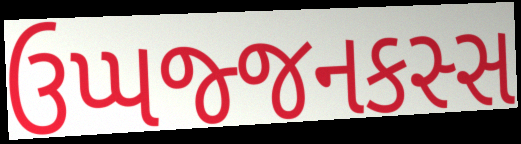
ઉપ્પજ્જનકસ્સ